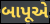
બાપૂએ